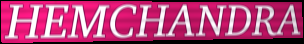
HEMCHANDRA